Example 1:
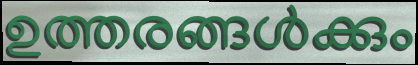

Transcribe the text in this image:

ഉത്തരങ്ങൾക്കും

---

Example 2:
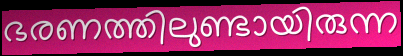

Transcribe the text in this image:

ഭരണത്തിലുണ്ടായിരുന്ന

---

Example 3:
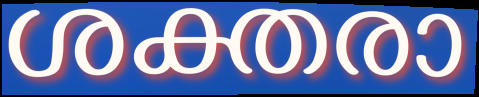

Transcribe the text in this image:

ശക്തരാ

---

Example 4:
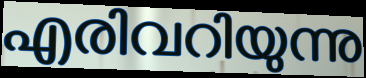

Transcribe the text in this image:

എരിവറിയുന്നു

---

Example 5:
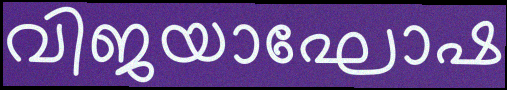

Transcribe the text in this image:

വിജയാഘോഷ